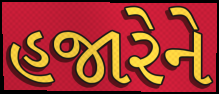
હજારેને